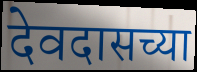
देवदासच्या